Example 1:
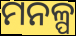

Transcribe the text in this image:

ମନଳ୍ପ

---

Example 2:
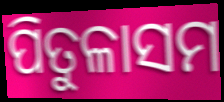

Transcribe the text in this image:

ପିତୁଳାସମ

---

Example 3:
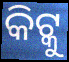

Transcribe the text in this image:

କିଟ୍କୁ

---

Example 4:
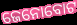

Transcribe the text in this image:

ଜେନୋବୋଟ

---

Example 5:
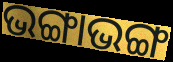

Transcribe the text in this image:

ଭଙ୍ଗାଭଙ୍ଗ